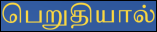
பெறுதியால்